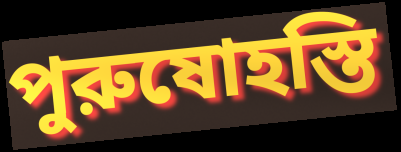
পুরুষোহস্তি